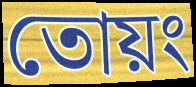
তোয়ং